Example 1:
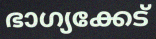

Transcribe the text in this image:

ഭാഗ്യക്കേട്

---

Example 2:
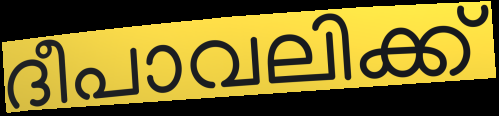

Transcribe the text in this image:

ദീപാവലിക്ക്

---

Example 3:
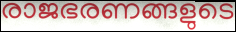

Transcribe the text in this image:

രാജഭരണങ്ങളുടെ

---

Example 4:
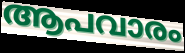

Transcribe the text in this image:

ആപവാരം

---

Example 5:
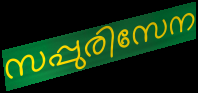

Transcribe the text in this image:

സപ്പുരിസേന